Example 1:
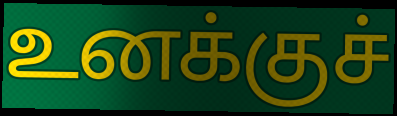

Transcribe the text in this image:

உனக்குச்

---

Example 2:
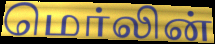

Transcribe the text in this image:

மெர்லின்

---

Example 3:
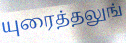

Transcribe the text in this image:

யுரைத்தலுங்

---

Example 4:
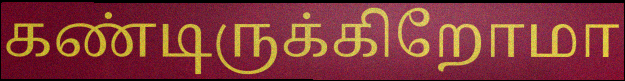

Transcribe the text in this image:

கண்டிருக்கிறோமா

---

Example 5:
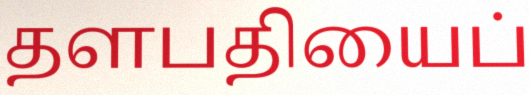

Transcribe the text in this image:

தளபதியைப்